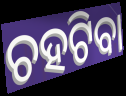
ଚହଟିବା